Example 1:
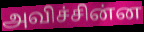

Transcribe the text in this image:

அவிச்சின்ன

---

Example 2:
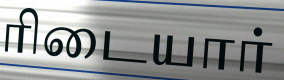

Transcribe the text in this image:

ரிடையார்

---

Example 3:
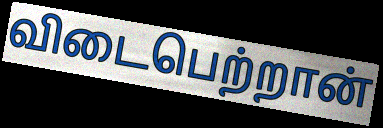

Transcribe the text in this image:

விடைபெற்றான்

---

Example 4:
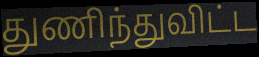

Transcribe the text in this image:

துணிந்துவிட்ட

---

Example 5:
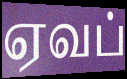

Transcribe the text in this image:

ஏவப்